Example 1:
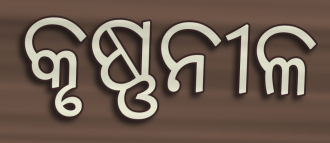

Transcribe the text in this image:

କୃଷ୍ଣନୀଳ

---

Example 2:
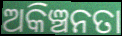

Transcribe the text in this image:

ଅକିଞ୍ଚନତା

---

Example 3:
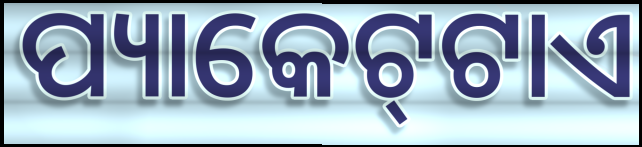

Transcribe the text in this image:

ପ୍ୟାକେଟ୍‌ଟାଏ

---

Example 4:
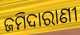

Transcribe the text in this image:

ଜମିଦାରାଣୀ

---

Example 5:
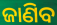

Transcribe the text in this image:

ଜାଣିବ